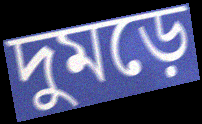
দুমড়ে